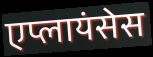
एप्लायंसेस